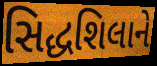
સિદ્ધશિલાને